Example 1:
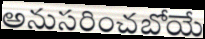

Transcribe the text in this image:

అనుసరించబోయే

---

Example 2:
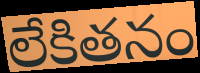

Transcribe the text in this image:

లేకితనం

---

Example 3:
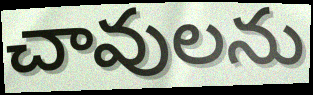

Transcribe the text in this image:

చావులను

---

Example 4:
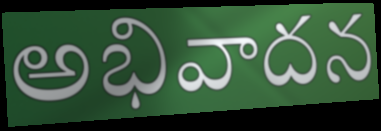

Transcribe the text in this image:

అభివాదన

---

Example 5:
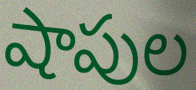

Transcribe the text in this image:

షాపుల